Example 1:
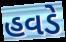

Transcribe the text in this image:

હવડે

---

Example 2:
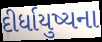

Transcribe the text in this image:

દીર્ધાયુષ્યના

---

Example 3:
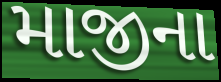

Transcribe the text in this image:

માજીના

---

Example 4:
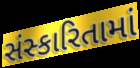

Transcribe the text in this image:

સંસ્કારિતામાં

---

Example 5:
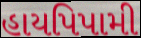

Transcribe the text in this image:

હાયપિપામી